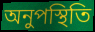
অনুপস্থিতি